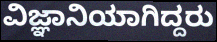
ವಿಜ್ಞಾನಿಯಾಗಿದ್ದರು